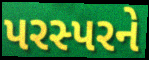
પરસ્પરને